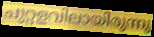
ചുറ്റളവിലായിരുന്നു